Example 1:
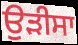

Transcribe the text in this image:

ਉੜੀਸਾ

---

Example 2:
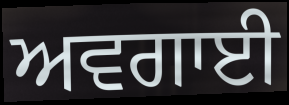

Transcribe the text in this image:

ਅਵਗਾਈ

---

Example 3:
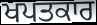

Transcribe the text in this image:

ਖਪਤਕਾਰ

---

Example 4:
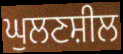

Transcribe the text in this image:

ਘੁਲਣਸ਼ੀਲ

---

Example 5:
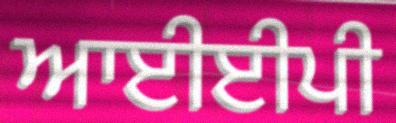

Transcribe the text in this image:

ਆਈਈਪੀ